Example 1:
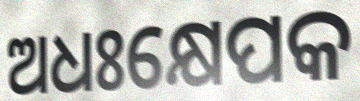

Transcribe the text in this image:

ଅଧଃକ୍ଷେପକ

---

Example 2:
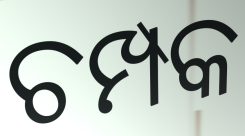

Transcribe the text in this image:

ଚମ୍ପକ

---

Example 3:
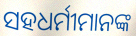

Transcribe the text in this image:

ସହଧର୍ମୀମାନଙ୍କ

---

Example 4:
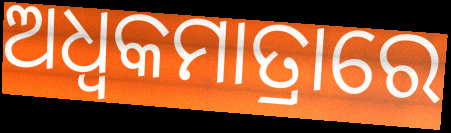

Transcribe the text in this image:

ଅଧ୍ଵକମାତ୍ରାରେ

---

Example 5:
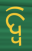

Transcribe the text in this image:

ଦ୍ଵି